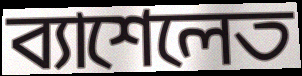
ব্যাশেলেত